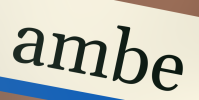
ambe